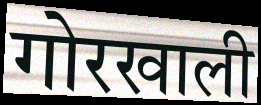
गोरखाली